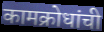
कामक्रोधांची